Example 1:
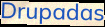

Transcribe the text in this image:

Drupadas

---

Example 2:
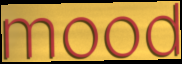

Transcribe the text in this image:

mood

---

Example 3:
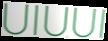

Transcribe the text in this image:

UIUUI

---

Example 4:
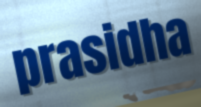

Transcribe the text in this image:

prasidha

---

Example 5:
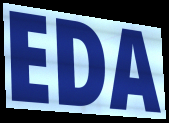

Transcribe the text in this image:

EDA